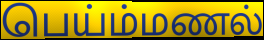
பெய்ம்மணல்